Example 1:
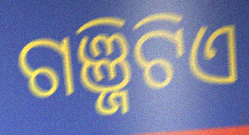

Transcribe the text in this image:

ଗଞ୍ଜିଟିଏ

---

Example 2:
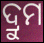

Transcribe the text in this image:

ଦ୍ରୁମ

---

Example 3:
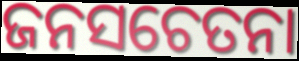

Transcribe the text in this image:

ଜନସଚେତନା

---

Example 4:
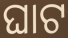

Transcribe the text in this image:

ଘାଟ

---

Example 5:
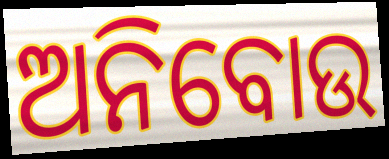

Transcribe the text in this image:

ଅନିବୋଉ